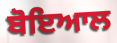
ਬੋਇਆਲ